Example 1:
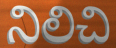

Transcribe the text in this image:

నిలిచి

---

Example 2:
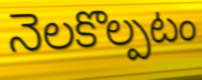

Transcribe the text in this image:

నెలకొల్పటం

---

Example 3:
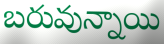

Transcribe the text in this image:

బరువున్నాయి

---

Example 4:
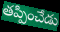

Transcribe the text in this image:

తప్పించేడు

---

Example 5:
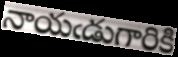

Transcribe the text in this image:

నాయఁడుగారికి